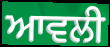
ਆਵਲੀ